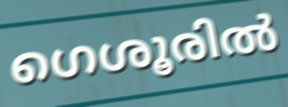
ഗെശൂരിൽ